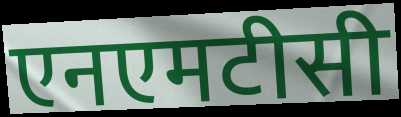
एनएमटीसी